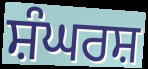
ਸ਼ੰਘਰਸ਼